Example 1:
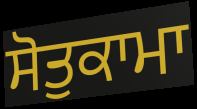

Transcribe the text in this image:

ਸੋਤੁਕਾਮਾ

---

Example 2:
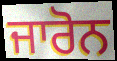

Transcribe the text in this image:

ਜਾਰੋਨ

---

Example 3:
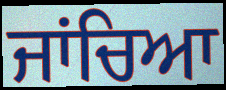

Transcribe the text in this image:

ਜਾਂਚਿਆ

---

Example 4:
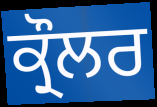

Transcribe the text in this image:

ਕ੍ਰੌਲਰ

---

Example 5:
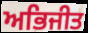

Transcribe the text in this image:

ਅਭਿਜੀਤ